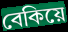
বেকিয়ে